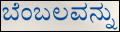
ಬೆಂಬಲವನ್ನು